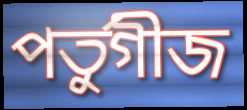
পর্তুগীজ